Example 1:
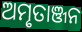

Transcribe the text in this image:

ଅମୃତାଞ୍ଜନ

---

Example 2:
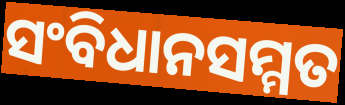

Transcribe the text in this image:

ସଂବିଧାନସମ୍ମତ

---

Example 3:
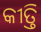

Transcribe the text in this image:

କୀତ୍ତି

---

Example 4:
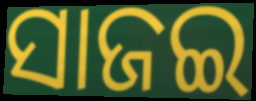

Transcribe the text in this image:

ସାଜଇ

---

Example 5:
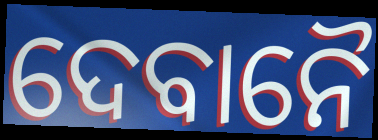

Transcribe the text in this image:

ଦେବାନୈ